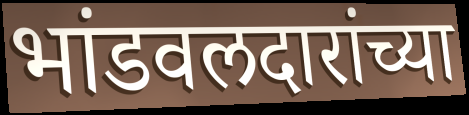
भांडवलदारांच्या